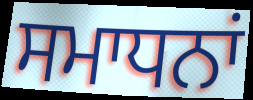
ਸਮਾਧਨਾਂ